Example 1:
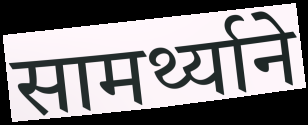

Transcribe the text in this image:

सामर्थ्याने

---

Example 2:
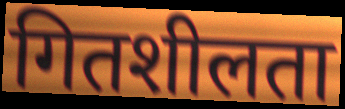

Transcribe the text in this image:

गितशीलता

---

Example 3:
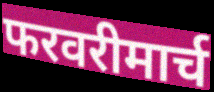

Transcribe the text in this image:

फरवरीमार्च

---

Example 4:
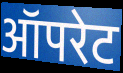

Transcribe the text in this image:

ऑपरेट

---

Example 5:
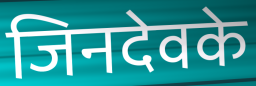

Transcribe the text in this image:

जिनदेवके